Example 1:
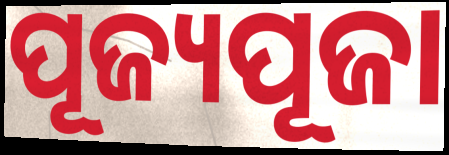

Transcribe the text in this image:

ପୂଜ୍ୟପୂଜା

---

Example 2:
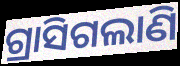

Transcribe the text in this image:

ଗ୍ରାସିଗଲାଣି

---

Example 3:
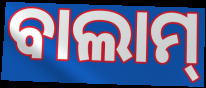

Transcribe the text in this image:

ବାଲାମ୍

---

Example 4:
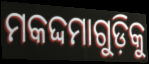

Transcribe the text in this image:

ମକଦ୍ଦମାଗୁଡ଼ିକୁ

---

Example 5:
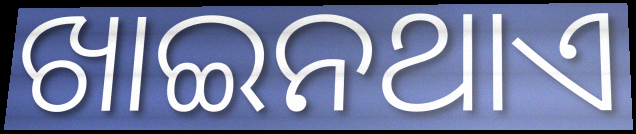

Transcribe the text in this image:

ଖାଇନଥାଏ